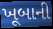
ખૂબાની